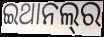
ଇଥାନଲ୍‌ର